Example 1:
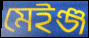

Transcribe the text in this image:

মেইঞ্জ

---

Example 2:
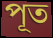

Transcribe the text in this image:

পূত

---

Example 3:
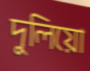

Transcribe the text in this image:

দুলিয়ো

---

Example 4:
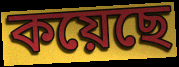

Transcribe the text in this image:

কয়েছে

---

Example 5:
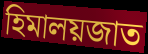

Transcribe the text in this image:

হিমালয়জাত